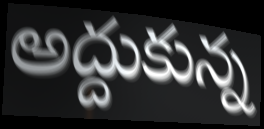
అద్దుకున్న